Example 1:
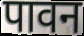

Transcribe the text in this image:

पावन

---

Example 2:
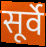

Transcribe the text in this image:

सूर्वे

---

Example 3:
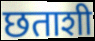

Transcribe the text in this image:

छताशी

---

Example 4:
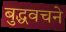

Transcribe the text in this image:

बुद्धवचने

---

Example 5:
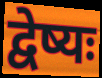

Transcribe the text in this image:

द्वेष्यः